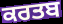
ਕਰਤਬ